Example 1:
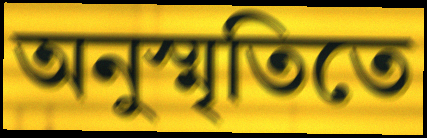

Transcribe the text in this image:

অনুস্মৃতিতে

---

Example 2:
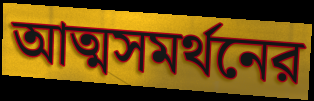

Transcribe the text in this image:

আত্মসমর্থনের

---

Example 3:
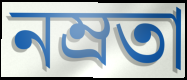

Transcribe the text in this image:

নম্রতা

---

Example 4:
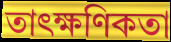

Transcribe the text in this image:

তাৎক্ষণিকতা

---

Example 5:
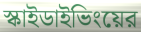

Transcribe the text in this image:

স্কাইডাইভিংয়ের